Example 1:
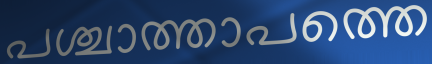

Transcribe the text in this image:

പശ്ചാത്താപത്തെ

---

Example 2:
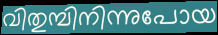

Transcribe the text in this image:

വിതുമ്പിനിന്നുപോയ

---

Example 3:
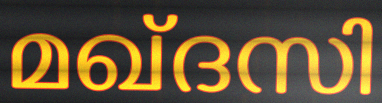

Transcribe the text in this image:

മഖ്ദസി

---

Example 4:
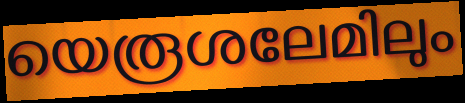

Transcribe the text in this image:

യെരൂശലേമിലും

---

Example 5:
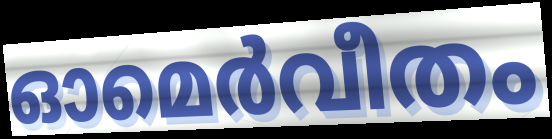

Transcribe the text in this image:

ഓമെർവീതം